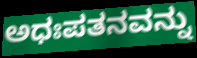
ಅಧಃಪತನವನ್ನು